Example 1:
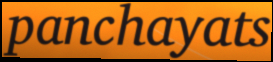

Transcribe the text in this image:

panchayats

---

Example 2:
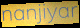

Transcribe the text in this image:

nanjiyar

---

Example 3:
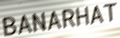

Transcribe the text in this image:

BANARHAT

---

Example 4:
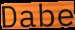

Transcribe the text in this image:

Dabe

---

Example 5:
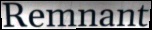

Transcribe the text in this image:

Remnant